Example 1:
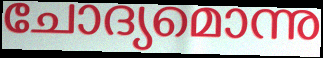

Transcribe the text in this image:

ചോദ്യമൊന്നു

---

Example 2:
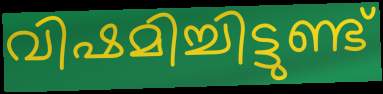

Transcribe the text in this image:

വിഷമിച്ചിട്ടുണ്ട്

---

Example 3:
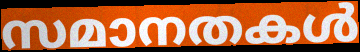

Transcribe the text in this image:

സമാനതകൾ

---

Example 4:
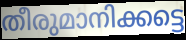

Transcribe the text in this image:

തീരുമാനിക്കട്ടെ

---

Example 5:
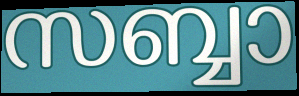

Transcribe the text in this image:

സബ്ബാ